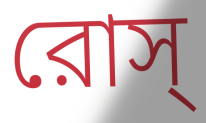
রোস্